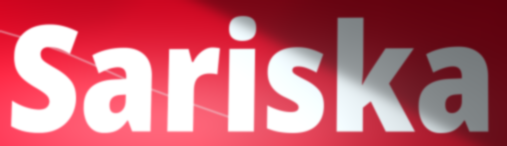
Sariska